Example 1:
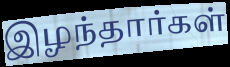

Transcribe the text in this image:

இழந்தார்கள்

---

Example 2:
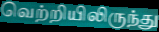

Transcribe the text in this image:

வெற்றியிலிருந்து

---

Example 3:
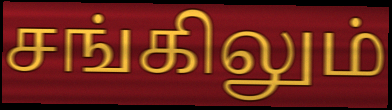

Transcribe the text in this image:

சங்கிலும்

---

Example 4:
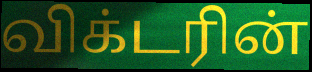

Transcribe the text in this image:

விக்டரின்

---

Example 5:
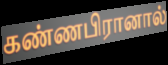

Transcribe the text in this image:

கண்ணபிரானால்